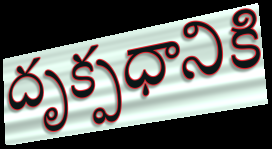
దృక్పధానికి